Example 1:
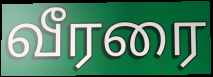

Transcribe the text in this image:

வீரரை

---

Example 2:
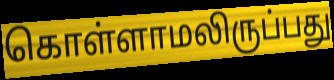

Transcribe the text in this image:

கொள்ளாமலிருப்பது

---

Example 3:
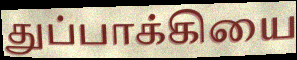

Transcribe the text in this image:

துப்பாக்கியை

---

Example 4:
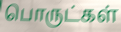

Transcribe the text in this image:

பொருட்கள்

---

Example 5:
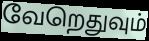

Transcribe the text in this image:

வேறெதுவும்